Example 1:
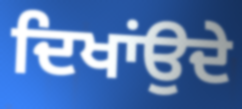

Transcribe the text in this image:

ਦਿਖਾਂਉਦੇ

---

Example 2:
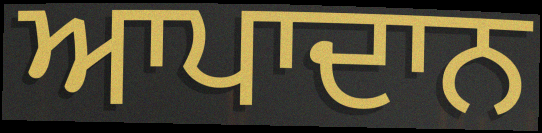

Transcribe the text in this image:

ਆਪਾਦਾਨ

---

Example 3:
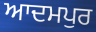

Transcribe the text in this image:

ਆਦਮਪੁਰ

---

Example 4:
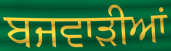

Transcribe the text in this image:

ਬਜਵਾੜੀਆਂ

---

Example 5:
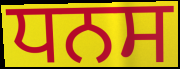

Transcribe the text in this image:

ਧਨਸ